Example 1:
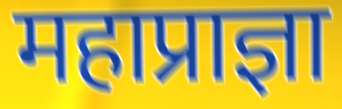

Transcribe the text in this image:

महाप्राज्ञा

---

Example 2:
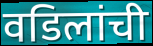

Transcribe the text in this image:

वडिलांची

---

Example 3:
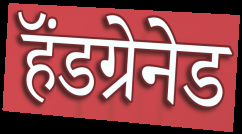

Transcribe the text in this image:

हॅंडग्रेनेड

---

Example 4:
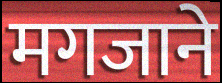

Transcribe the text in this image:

मगजाने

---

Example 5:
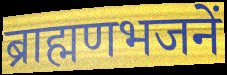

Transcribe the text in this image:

ब्राह्मणभजनें